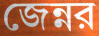
জেন্নর